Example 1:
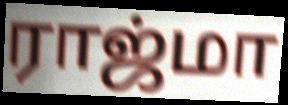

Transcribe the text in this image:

ராஜ்மா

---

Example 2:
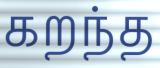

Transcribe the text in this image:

கறந்த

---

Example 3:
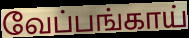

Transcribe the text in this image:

வேப்பங்காய்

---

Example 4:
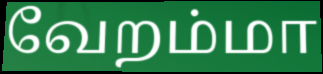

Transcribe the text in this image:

வேறம்மா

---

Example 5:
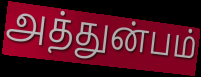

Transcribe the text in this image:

அத்துன்பம்